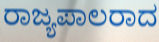
ರಾಜ್ಯಪಾಲರಾದ